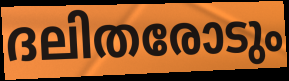
ദലിതരോടും